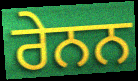
ਰੇਨਨ